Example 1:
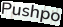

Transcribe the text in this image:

Pushpo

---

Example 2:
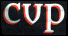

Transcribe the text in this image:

cup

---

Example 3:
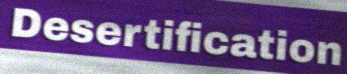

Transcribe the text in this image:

Desertification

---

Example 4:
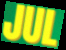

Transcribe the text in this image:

JUL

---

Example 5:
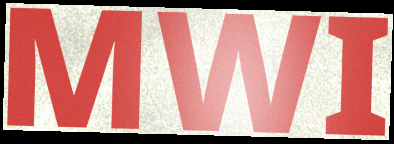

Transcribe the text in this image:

MWI